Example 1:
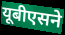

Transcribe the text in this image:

यूबीएसने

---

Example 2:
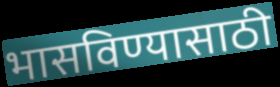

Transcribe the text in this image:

भासविण्यासाठी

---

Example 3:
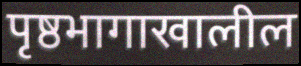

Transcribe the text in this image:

पृष्ठभागाखालील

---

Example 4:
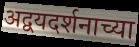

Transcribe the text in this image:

अद्वयदर्शनाच्या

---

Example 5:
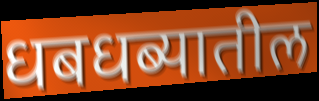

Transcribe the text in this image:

धबधब्यातील